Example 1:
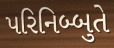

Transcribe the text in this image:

પરિનિબ્બુતે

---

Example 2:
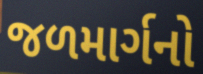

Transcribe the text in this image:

જળમાર્ગનો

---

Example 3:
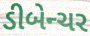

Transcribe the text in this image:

ડીબેન્ચર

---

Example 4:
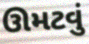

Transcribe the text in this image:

ઊમટવું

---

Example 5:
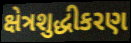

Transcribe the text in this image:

ક્ષેત્રશુદ્ધીકરણ